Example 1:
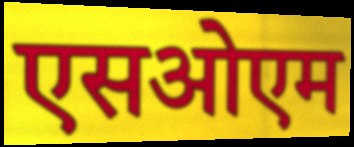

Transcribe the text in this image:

एसओएम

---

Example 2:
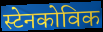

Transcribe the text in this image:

स्टेनकोविक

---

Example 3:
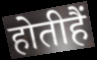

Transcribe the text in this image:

होतीहैं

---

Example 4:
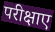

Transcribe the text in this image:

परीक्षाए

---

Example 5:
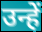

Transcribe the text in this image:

उन्हें